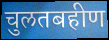
चुलतबहीण